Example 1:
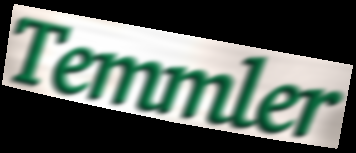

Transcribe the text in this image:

Temmler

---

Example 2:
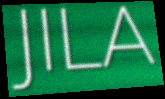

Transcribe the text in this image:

JILA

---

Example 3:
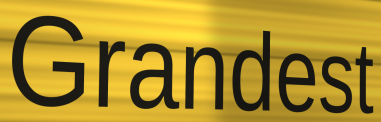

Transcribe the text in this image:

Grandest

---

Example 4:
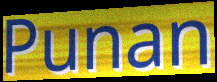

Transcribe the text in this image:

Punan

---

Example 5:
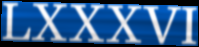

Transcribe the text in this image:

LXXXVI